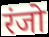
रंजो